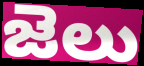
జెలు